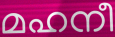
മഹനീ